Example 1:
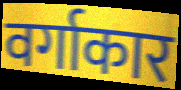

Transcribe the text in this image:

वर्गाकार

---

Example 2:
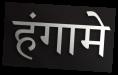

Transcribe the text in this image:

हंगामे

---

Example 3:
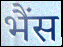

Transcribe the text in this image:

भैंस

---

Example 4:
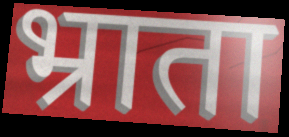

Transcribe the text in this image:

भ्राता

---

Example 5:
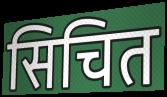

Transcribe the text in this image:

सिचित